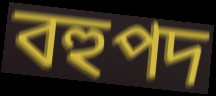
বহুপদ